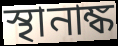
স্থানাঙ্ক